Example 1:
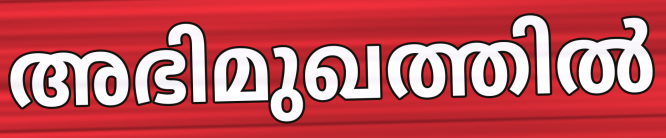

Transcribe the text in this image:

അഭിമുഖത്തിൽ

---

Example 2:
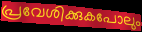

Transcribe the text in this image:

പ്രവേശിക്കുകപോലും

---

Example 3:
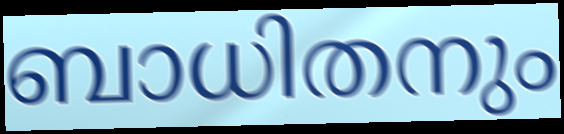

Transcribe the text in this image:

ബാധിതനും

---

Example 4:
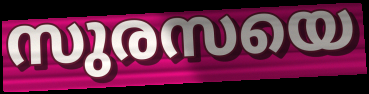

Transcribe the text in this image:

സുരസയെ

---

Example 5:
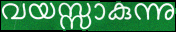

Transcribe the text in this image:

വയസ്സാകുന്നു